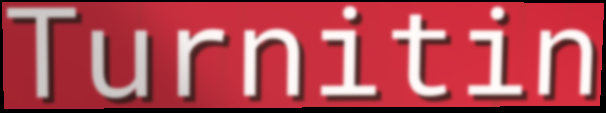
Turnitin